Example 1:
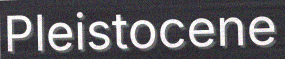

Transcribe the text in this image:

Pleistocene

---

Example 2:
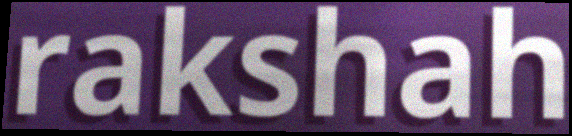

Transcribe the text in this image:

rakshah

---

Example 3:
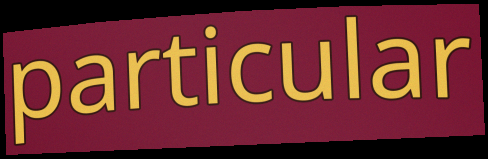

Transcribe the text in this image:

particular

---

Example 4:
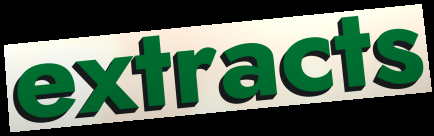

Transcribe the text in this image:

extracts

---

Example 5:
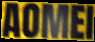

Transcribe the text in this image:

AOMEI